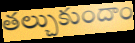
తల్చుకుందాం